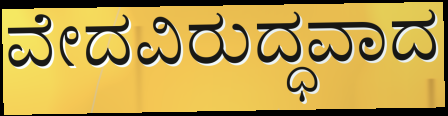
ವೇದವಿರುದ್ಧವಾದ